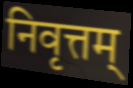
निवृत्तम्